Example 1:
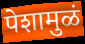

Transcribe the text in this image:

पेशामुळं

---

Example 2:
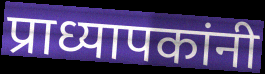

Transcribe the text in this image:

प्राध्यापकांनी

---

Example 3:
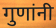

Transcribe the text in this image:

गुणांनी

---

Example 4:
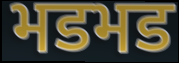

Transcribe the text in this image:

भडभड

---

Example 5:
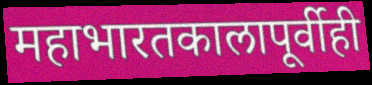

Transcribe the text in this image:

महाभारतकालापूर्वीही